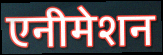
एनीमेशन